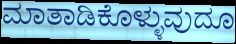
ಮಾತಾಡಿಕೊಳ್ಳುವುದೂ